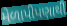
મેળાપીપણાથી